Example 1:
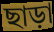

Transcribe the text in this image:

ছাড়া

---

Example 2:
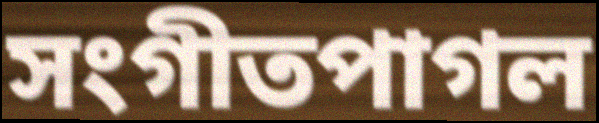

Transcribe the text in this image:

সংগীতপাগল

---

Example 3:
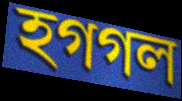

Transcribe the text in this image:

হগগল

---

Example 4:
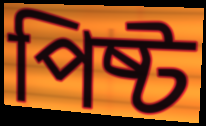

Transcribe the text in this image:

পিষ্ট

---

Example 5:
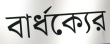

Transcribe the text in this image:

বার্ধক্যের